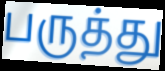
பருத்து